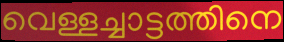
വെള്ളച്ചാട്ടത്തിനെ